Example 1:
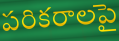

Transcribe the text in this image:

పరికరాలపై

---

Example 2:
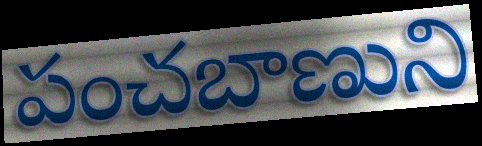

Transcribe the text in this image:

పంచబాణుని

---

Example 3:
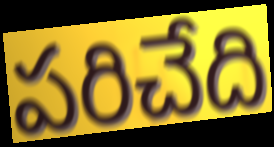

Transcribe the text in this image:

పరిచేది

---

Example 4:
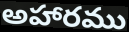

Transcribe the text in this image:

అహారము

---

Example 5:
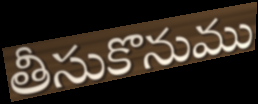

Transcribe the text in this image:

తీసుకొనుము